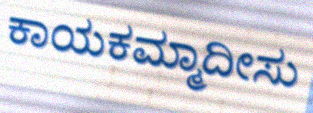
ಕಾಯಕಮ್ಮಾದೀಸು